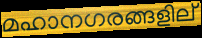
മഹാനഗരങ്ങളില്